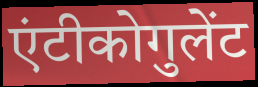
एंटीकोगुलेंट